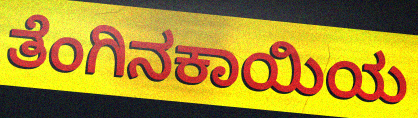
ತೆಂಗಿನಕಾಯಿಯ